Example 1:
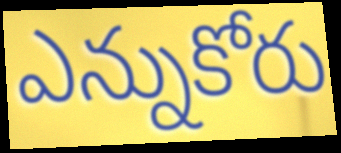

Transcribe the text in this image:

ఎన్నుకోరు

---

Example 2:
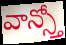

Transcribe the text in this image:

వాన్స్తో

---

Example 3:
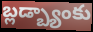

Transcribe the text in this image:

బ్లడ్బ్యాంకు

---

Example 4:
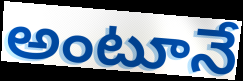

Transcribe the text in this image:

అంటూనే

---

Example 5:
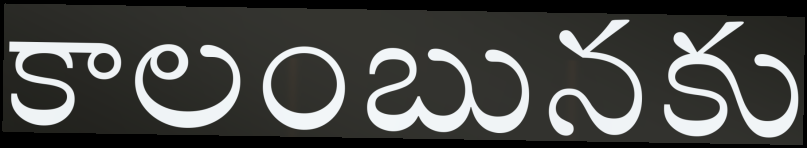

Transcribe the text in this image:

కాలంబునకు